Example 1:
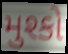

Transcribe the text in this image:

મુશ્કો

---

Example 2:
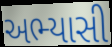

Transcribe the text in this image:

અભ્યાસી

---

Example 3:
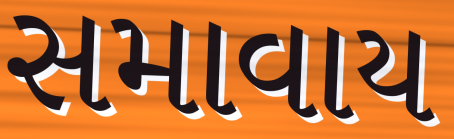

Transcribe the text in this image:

સમાવાય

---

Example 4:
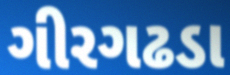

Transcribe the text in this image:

ગીરગઢડા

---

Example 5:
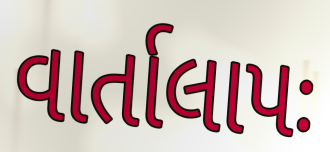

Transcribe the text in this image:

વાર્તાલાપઃ